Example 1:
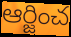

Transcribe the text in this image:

ఆర్జించ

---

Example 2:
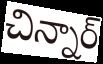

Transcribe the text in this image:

చిన్నార్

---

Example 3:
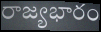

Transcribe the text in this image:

రాజ్యభారం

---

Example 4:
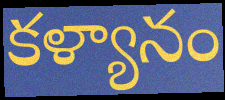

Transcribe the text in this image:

కళ్యానం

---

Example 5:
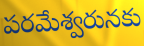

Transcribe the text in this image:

పరమేశ్వరునకు